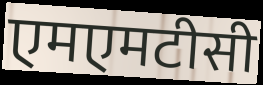
एमएमटीसी